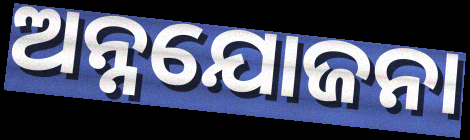
ଅନ୍ନଯୋଜନା